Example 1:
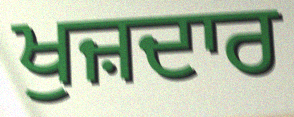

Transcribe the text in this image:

ਖੁਜ਼ਦਾਰ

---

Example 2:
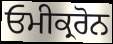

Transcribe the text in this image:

ਓਮੀਕ੍ਰਰੋਨ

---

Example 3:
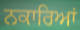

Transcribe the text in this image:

ਨਕਾਰਿਆਂ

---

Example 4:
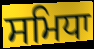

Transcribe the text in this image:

ਸਮਿਧਾ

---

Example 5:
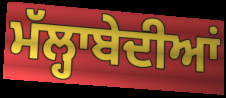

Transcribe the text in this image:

ਮੱਲ੍ਹਾਬੇਦੀਆਂ